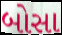
બોસા